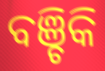
ବଞ୍ଚିକି